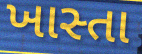
ખાસ્તા